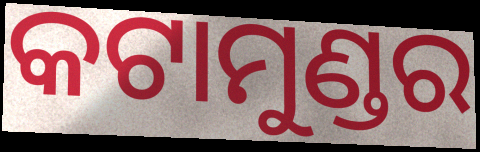
କଟାମୁଣ୍ଡର